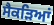
ਸੈਕੜਿਆਂ